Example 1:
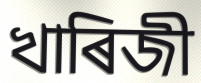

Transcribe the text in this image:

খাৰিজী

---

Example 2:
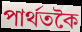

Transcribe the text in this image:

পাৰ্থতকৈ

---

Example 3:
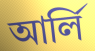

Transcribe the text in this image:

আৰ্লি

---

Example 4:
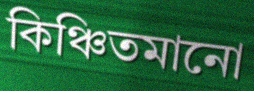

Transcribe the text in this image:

কিঞ্চিতমানো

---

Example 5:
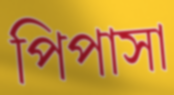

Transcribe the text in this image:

পিপাসা